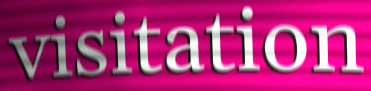
visitation